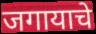
जगायाचे